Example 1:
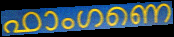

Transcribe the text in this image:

ഫാംഗണെ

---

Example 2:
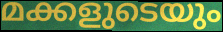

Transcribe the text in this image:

മക്കളുടെയും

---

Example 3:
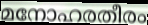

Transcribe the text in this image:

മനോഹരതീരം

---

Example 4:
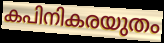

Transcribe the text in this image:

കപിനികരയുതം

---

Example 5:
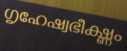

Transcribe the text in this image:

ഗൃഹേഷ്വഭീക്ഷ്ണം